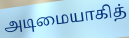
அடிமையாகித்